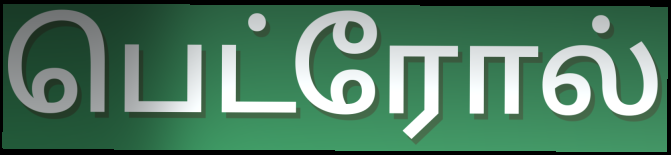
பெட்ரோல்